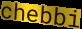
chebbi